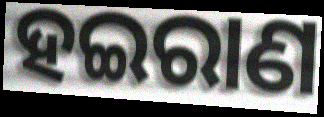
ହଇରାଣ